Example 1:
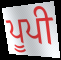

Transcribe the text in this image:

ਪੂਪੀ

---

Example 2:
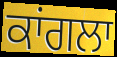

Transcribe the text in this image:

ਕਾਂਗਲਾ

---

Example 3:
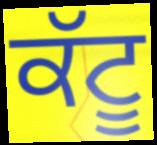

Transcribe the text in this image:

ਕੱਟੂ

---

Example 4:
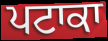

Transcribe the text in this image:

ਪਟਾਕਾ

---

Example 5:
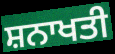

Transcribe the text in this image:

ਸ਼ਨਾਖਤੀ